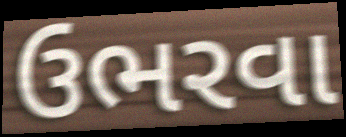
ઉભરવા